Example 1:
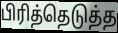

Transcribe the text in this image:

பிரித்தெடுத்த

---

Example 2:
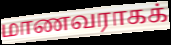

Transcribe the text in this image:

மாணவராகக்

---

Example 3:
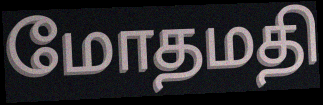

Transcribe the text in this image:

மோதமதி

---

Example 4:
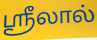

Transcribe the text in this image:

ஸ்ரீலால்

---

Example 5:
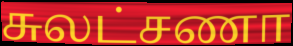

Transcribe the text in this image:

சுலட்சணா